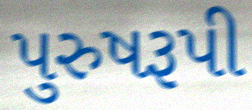
પુરુષરૂપી